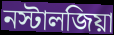
নস্টালজিয়া